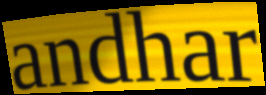
andhar